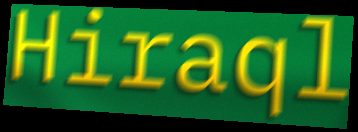
Hiraql